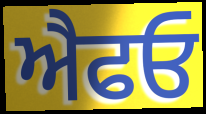
ਐਫਓ